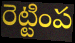
రెట్టింప